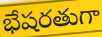
భేషరతుగా